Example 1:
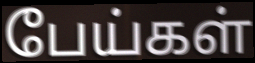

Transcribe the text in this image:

பேய்கள்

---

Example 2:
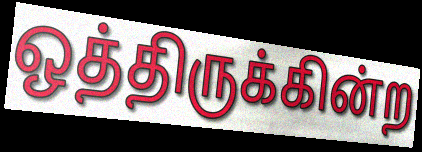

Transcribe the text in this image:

ஒத்திருக்கின்ற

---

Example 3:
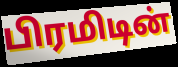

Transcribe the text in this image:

பிரமிடின்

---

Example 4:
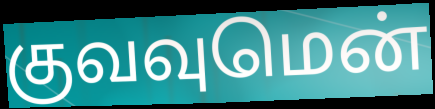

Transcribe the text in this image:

குவவுமென்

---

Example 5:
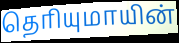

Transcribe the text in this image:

தெரியுமாயின்